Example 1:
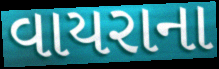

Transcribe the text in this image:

વાયરાના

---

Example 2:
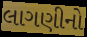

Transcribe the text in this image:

લાગણીનો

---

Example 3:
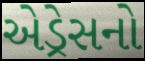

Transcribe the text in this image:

એડ્રેસનો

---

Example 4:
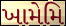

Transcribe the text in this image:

ખામેમિ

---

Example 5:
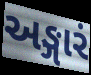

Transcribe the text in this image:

અઙ્ગારં